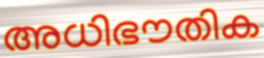
അധിഭൗതിക